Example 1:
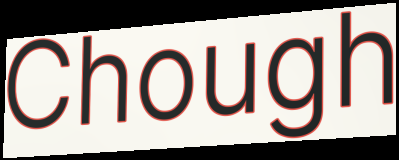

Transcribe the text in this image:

Chough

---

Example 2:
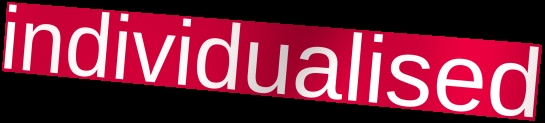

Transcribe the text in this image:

individualised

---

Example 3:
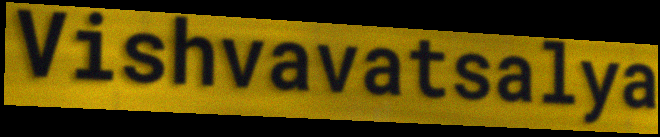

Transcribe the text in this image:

Vishvavatsalya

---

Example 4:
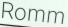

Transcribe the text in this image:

Romm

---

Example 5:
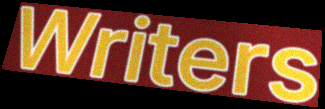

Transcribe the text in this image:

Writers